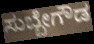
ಸುಬ್ಬೇಗೌಡ